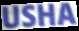
USHA